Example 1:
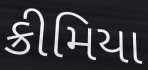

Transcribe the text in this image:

ક્રીમિયા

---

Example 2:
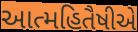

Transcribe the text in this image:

આત્મહિતૈષીએ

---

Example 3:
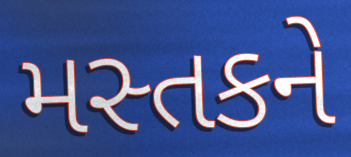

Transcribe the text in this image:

મસ્તકને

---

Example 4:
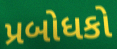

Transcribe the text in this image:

પ્રબોધકો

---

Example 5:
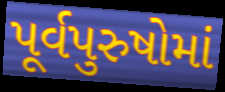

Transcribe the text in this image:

પૂર્વપુરુષોમાં